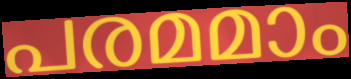
പരമമാം